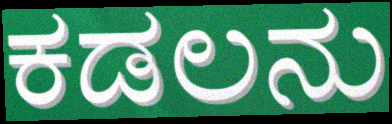
ಕಡಲನು